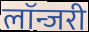
लॉन्जरी